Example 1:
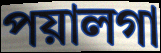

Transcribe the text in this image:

পয়ালগা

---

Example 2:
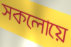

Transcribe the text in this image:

সকলোয়ে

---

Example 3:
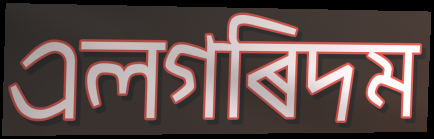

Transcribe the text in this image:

এলগৰিদম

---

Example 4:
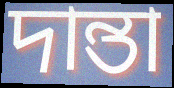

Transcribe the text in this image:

দান্তা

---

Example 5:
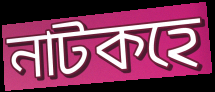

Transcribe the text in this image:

নাটকহে